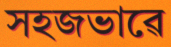
সহজভাৱে